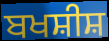
ਬਖਸ਼ੀਸ਼